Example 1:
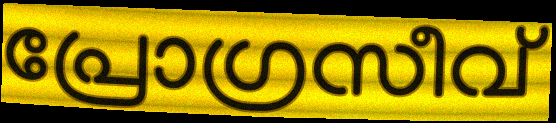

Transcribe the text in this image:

പ്രോഗ്രസീവ്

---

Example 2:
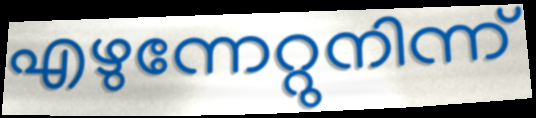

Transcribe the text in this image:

എഴുന്നേറ്റുനിന്ന്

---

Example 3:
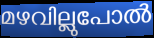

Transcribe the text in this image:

മഴവില്ലുപോൽ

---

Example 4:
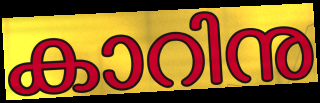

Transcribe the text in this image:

കാറിനു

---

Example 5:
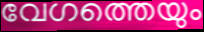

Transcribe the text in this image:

വേഗത്തെയും